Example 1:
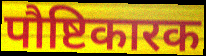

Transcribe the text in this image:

पौष्टिकारक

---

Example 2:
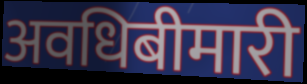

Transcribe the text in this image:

अवधिबीमारी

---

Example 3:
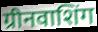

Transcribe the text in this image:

ग्रीनवाशिंग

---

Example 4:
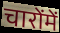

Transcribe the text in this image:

चारोंमें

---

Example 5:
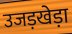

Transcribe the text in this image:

उजड़खेड़ा